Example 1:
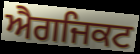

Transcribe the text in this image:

ਐਗਜਿਕਟ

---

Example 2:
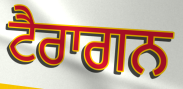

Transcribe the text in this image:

ਟੈਰਾਗਨ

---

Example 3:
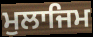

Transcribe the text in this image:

ਮੁਲਾਜਿਮ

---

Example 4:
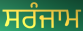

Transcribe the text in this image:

ਸਰੰਜਾਮ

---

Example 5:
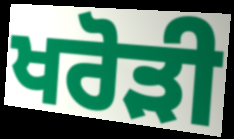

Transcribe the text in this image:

ਖਰੋੜੀ